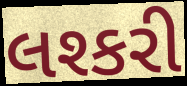
લશ્કરી